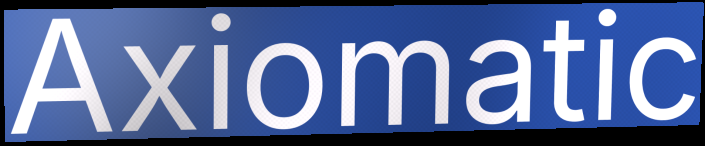
Axiomatic